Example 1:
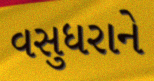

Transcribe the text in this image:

વસુધરાને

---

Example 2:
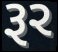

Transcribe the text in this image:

રૂર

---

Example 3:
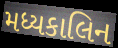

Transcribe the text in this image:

મધ્યકાલિન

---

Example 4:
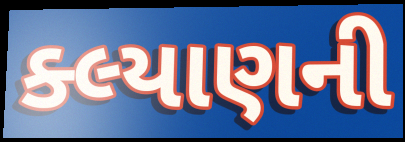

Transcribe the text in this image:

ક્લ્યાણની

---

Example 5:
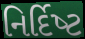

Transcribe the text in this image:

નિર્દિષ્‍ટ